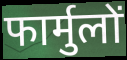
फार्मुलों